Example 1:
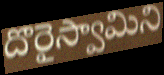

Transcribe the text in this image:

దొరైస్వామిని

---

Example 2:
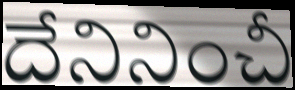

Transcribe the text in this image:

దేనినించీ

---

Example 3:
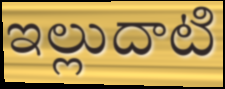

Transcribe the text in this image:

ఇల్లుదాటి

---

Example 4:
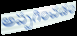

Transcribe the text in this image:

అప్పగించడం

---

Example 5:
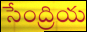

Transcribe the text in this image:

సేంద్రియ